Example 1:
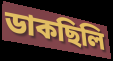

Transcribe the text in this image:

ডাকছিলি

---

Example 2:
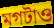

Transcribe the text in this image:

মগটাও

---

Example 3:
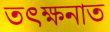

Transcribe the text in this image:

তৎক্ষনাত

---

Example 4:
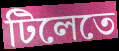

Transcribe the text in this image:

টিলেতে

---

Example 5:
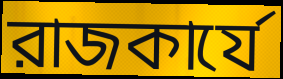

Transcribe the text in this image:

রাজকার্যে